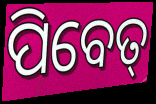
ପିବେତ୍